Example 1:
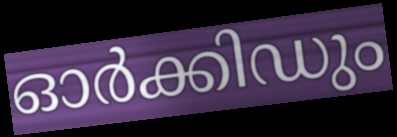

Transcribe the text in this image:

ഓർക്കിഡും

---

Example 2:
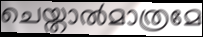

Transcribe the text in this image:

ചെയ്താൽമാത്രമേ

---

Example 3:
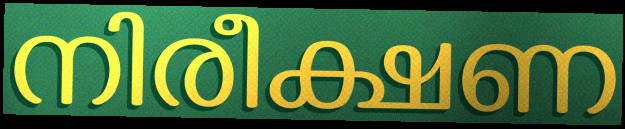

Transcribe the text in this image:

നിരീക്ഷണ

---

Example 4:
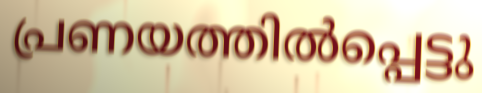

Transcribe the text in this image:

പ്രണയത്തിൽപ്പെട്ടു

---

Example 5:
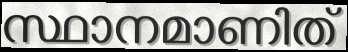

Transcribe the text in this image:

സ്ഥാനമാണിത്